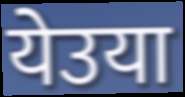
येउया